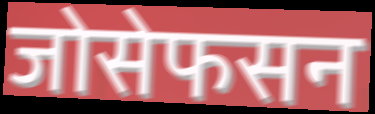
जोसेफसन